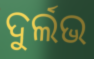
ଦୁର୍ଲଭ